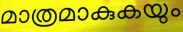
മാത്രമാകുകയും